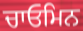
ਚਾਓਮਿਨ